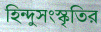
হিন্দুসংস্কৃতির